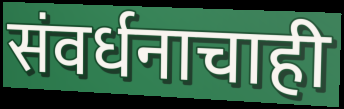
संवर्धनाचाही